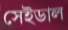
সেইডাল